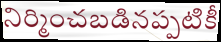
నిర్మించబడినప్పటికీ